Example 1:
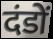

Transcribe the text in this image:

दंडों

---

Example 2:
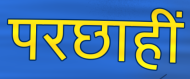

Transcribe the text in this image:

परछाहीं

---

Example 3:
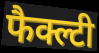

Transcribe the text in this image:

फैक्ल्टी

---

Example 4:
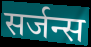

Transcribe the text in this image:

सर्जन्स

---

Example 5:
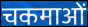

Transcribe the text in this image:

चकमाओं